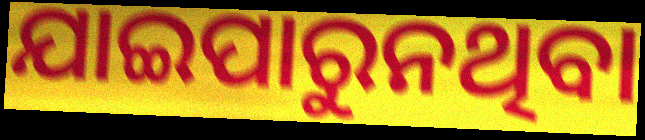
ଯାଇପାରୁନଥିବା